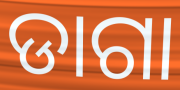
ଡାଗା